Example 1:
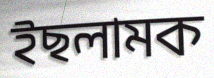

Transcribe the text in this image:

ইছলামক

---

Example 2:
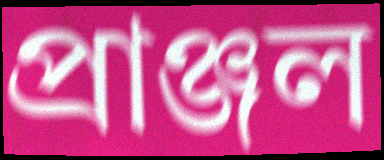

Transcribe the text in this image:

প্ৰাঞ্জল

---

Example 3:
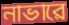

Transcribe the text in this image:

নাভাৱে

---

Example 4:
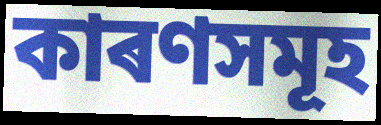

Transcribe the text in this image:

কাৰণসমূহ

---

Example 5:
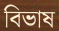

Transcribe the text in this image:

বিভাষ